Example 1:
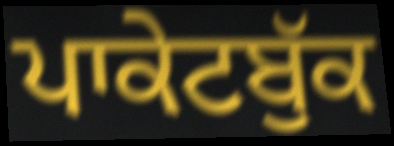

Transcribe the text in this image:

ਪਾਕੇਟਬੁੱਕ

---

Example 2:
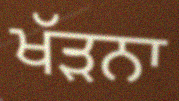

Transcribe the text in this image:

ਖੱੜਨਾ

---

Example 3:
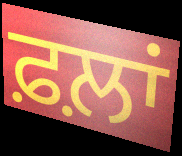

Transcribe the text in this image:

ਫ਼ਲ਼ਾਂ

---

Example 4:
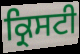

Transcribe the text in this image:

ਕ੍ਰਿਸਟੀ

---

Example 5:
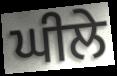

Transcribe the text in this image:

ਘੀਲੇ